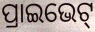
ପ୍ରାଇଭେଟ୍